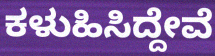
ಕಳುಹಿಸಿದ್ದೇವೆ